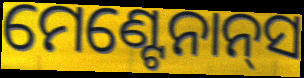
ମେଣ୍ଟେନାନ୍‌ସ